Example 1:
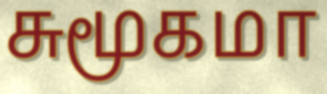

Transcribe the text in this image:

சுமூகமா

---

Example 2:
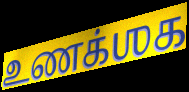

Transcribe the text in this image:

உணக்ஶக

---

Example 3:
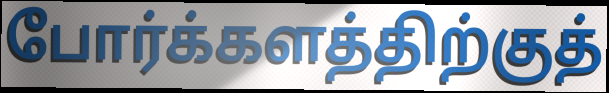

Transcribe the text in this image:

போர்க்களத்திற்குத்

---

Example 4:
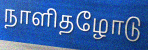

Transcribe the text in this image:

நாளிதழோடு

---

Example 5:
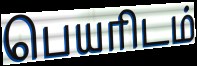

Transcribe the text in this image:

பெயரிடம்